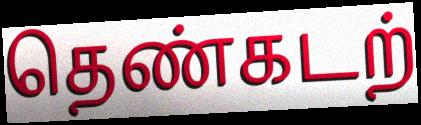
தெண்கடற்